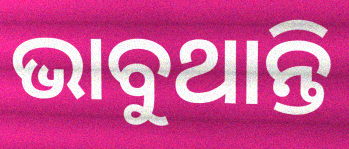
ଭାବୁଥାନ୍ତି